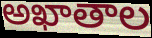
అఖాతాల